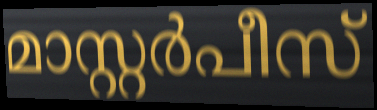
മാസ്റ്റർപീസ്